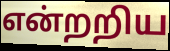
என்றறிய